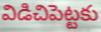
విడిచిపెట్టకు